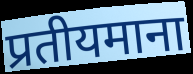
प्रतीयमाना